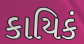
કાયિકં